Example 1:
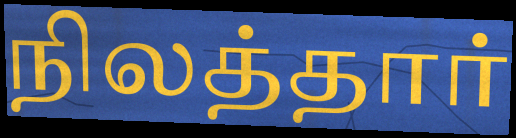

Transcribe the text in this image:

நிலத்தார்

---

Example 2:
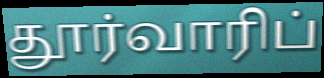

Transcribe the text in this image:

தூர்வாரிப்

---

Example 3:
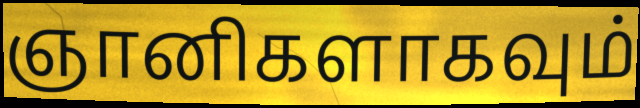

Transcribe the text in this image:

ஞானிகளாகவும்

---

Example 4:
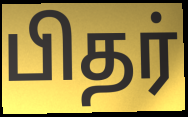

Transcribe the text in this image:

பிதர்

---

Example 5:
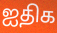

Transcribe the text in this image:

ஐதிக